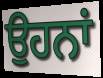
ਉਹਨਾਂ